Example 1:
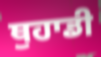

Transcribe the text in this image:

ਥੁਹਾਡੀ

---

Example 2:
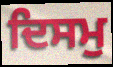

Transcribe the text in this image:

ਦਿਸਮੁ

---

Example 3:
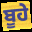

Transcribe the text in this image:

ਬੂਹੇ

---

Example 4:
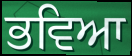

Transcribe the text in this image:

ਭਵਿਆ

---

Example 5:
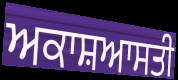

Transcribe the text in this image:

ਅਕਾਸ਼ਆਸਤੀ